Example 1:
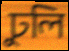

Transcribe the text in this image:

ঢুলি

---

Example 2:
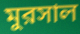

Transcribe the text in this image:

মুরসাল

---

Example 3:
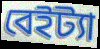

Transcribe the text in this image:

বেইট্যা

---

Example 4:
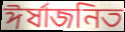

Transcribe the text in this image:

ঈর্ষাজনিত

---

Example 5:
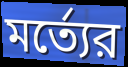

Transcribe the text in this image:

মর্ত্যের